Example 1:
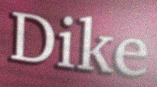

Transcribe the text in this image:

Dike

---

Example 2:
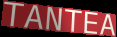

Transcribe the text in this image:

TANTEA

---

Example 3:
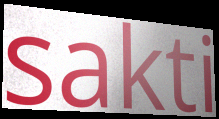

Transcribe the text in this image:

sakti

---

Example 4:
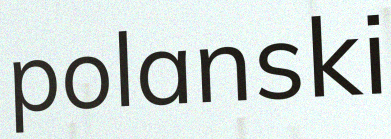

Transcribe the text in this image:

polanski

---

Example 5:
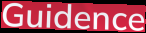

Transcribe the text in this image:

Guidence